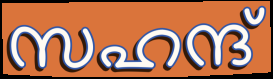
സഹന്ദ്